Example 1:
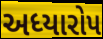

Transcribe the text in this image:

અધ્યારોપ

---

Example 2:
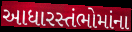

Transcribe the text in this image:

આધારસ્તંભોમાંના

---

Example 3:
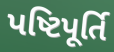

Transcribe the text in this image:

પષ્ટિપૂર્તિ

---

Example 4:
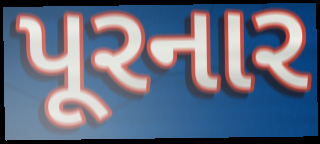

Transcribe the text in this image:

પૂરનાર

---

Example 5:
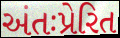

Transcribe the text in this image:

અંતઃપ્રેરિત